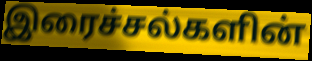
இரைச்சல்களின்